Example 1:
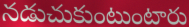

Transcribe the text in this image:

నడుచుకుంటుంటారు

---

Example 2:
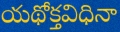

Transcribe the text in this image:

యథోక్తవిధినా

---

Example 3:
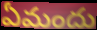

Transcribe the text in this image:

ఏమందు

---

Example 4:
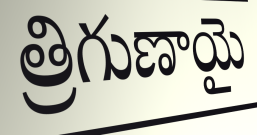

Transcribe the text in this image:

త్రిగుణాయై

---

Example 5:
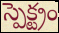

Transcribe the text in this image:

స్పెక్ట్రం